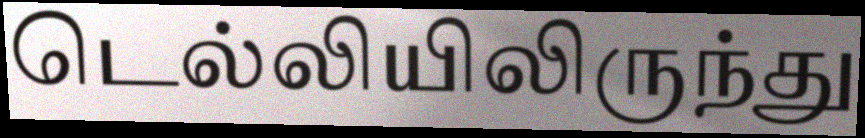
டெல்லியிலிருந்து